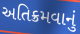
અતિક્રમવાનું